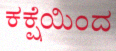
ಕಕ್ಷೆಯಿಂದ